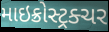
માઇક્રોસ્ટ્રક્ચર